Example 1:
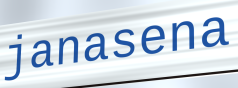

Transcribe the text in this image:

janasena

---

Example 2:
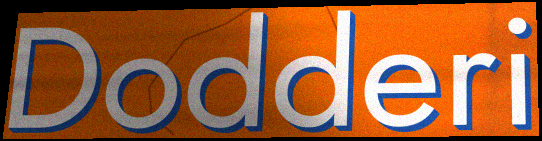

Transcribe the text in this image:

Dodderi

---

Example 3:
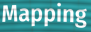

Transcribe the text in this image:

Mapping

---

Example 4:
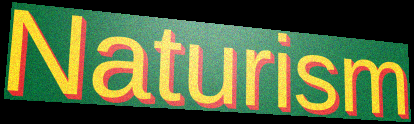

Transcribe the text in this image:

Naturism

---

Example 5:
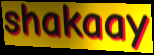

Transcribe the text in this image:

shakaay